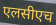
एलसीएच